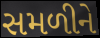
સમળીને